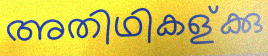
അതിഥികള്ക്കു